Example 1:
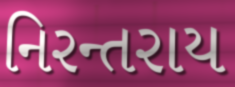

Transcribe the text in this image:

નિરન્તરાય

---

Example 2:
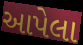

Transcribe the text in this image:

આપેલા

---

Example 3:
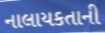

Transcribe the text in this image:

નાલાયકતાની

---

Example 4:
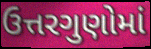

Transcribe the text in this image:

ઉત્તરગુણોમાં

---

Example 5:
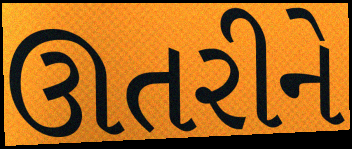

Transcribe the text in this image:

ઊતરીને